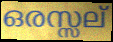
ഒരസ്സല്